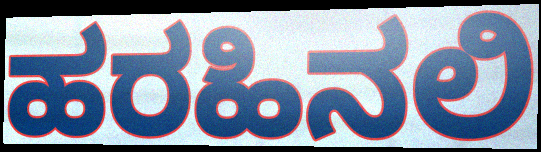
ಹರಹಿನಲಿ